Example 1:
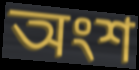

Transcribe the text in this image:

অংশ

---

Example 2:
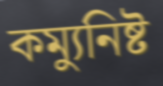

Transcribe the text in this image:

কম্যুনিষ্ট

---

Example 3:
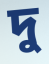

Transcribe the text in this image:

দু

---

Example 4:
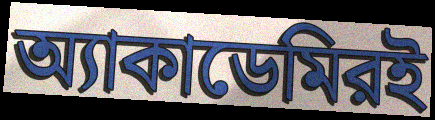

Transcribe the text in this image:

অ্যাকাডেমিরই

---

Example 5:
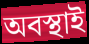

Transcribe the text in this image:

অবস্থাই